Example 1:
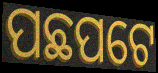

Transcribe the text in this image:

ପଛପଟେ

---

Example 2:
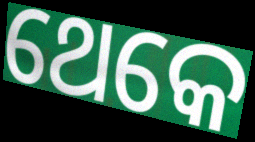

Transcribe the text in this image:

ଥେକେ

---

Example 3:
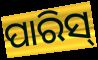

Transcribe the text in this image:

ପାରିସ୍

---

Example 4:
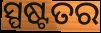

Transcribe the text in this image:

ସ୍ପଷ୍ଟତର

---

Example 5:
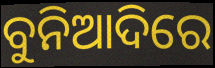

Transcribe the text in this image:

ବୁନିଆଦିରେ